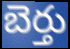
బెర్తు